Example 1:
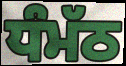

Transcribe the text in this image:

ਧੰਮੱਠ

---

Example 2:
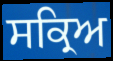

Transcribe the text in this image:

ਸਕ੍ਰਿਅ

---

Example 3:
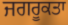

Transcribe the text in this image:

ਜਗਰੂਕਤਾ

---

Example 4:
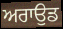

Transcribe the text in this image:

ਅਰਾਉਡ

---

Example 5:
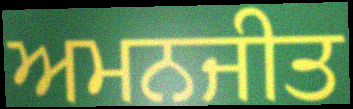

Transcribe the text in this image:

ਅਮਨਜੀਤ